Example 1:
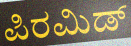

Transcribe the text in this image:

ಪಿರಮಿಡ್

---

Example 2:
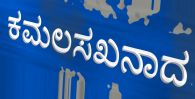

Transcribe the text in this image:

ಕಮಲಸಖನಾದ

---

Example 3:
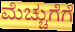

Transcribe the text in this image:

ಮೆಚ್ಚುಗೆಗೆ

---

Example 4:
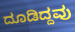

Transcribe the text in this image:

ದೂಡಿದ್ದವು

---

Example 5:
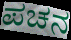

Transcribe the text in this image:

ಪಚನ